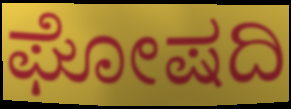
ಘೋಷದಿ